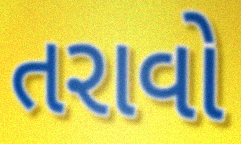
તરાવો